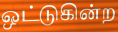
ஒட்டுகின்ற